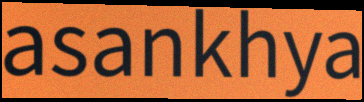
asankhya